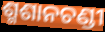
ଶ୍ମଶାନଚଣ୍ଡୀ